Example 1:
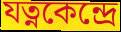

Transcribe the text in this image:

যত্নকেন্দ্রে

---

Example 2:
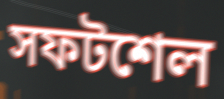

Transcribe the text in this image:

সফটশেল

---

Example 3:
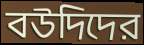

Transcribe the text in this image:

বউদিদের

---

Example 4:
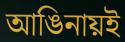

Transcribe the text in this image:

আঙিনায়ই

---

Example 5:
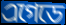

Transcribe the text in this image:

এগেডে